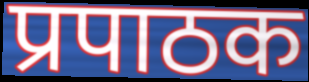
प्रपाठक